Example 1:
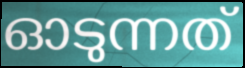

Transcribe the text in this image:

ഓടുന്നത്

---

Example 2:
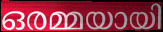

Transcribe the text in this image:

ഒരമ്മയായി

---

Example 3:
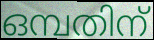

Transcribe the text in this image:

ഒമ്പതിന്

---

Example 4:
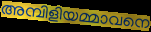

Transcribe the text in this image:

അമ്പിളിയമ്മാവനെ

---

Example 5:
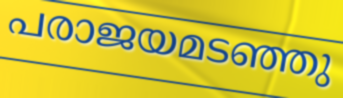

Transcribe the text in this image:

പരാജയമടഞ്ഞു